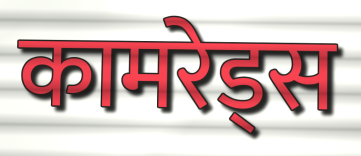
कामरेड्स